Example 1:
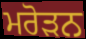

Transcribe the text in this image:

ਮਰੋੜਨ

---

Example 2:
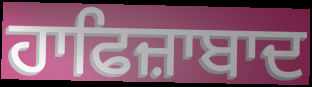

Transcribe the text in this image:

ਹਾਫਿਜ਼ਾਬਾਦ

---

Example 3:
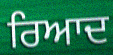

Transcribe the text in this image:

ਰਿਆਦ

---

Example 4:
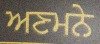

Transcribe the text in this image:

ਅਣਮਨੇ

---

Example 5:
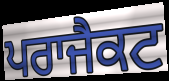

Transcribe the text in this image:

ਪਰਾਜੈਕਟ